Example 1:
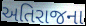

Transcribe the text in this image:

અતિરાજના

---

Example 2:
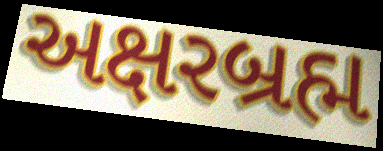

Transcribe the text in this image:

અક્ષરબ્રહ્મ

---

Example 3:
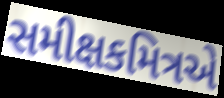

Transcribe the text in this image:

સમીક્ષકમિત્રએ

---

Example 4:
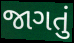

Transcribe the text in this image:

જાગતું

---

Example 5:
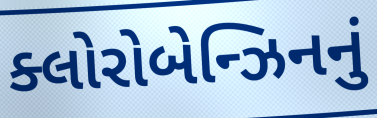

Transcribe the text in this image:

ક્લોરોબેન્ઝિનનું